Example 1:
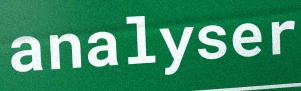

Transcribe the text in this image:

analyser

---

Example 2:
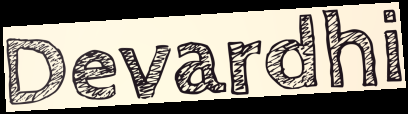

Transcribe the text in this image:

Devardhi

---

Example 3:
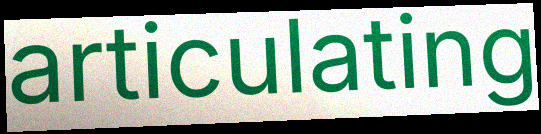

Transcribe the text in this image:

articulating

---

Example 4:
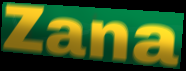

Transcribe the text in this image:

Zana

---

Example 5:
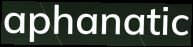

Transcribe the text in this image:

aphanatic